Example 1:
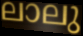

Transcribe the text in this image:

ലാലു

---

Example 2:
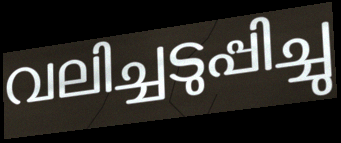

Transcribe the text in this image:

വലിച്ചടുപ്പിച്ചു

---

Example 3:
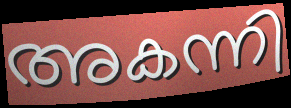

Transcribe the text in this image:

അകന്നി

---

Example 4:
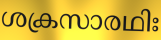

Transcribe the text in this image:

ശക്രസാരഥിഃ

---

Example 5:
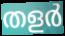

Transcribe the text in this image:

തളർ